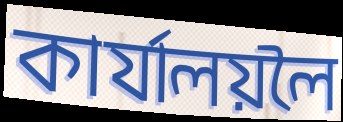
কাৰ্যালয়লৈ